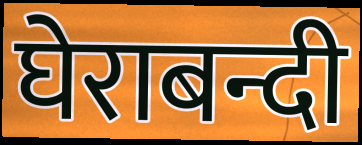
घेराबन्दी